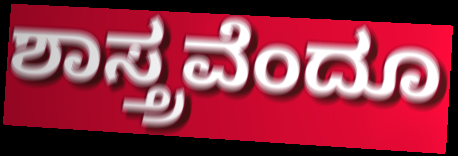
ಶಾಸ್ತ್ರವೆಂದೂ